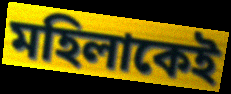
মহিলাকেই